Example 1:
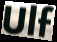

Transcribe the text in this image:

Ulf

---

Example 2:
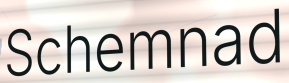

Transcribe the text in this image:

Schemnad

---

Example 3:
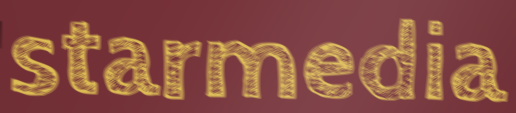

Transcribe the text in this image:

starmedia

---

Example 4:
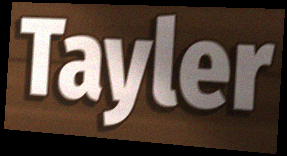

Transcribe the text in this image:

Tayler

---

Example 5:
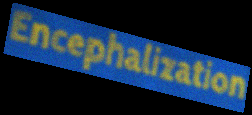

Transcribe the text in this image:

Encephalization